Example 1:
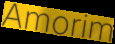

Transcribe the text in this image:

Amorim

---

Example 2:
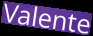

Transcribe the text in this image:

Valente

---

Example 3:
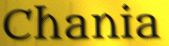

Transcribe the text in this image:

Chania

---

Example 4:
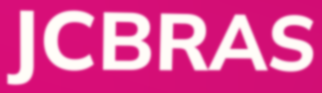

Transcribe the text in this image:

JCBRAS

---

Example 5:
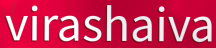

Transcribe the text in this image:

virashaiva